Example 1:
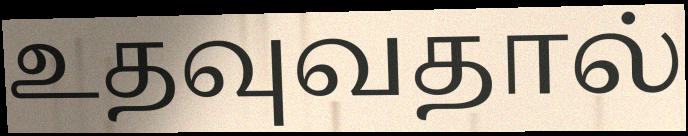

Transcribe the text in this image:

உதவுவதால்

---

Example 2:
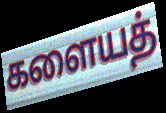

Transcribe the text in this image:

களையத்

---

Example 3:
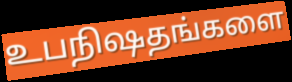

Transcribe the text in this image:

உபநிஷதங்களை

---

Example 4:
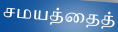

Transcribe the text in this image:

சமயத்தைத்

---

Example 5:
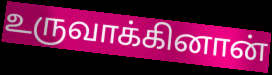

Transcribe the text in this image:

உருவாக்கினான்